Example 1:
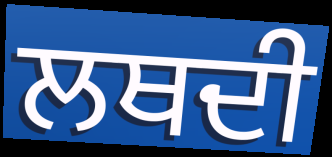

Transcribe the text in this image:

ਲਥਦੀ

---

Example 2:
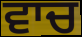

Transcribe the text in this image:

ਵਾਚ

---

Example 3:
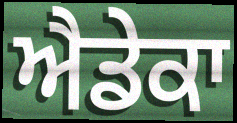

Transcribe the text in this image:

ਐਡੇਕਾ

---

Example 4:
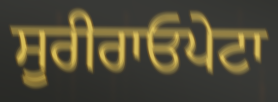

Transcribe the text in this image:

ਸੂਰੀਰਾਓਪੇਟਾ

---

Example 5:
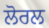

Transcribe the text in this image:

ਲੋਰਲ